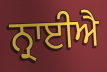
ਨ੍ਰਾਈਐ